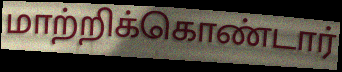
மாற்றிக்கொண்டார்